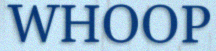
WHOOP